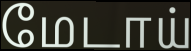
மேடாய்